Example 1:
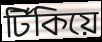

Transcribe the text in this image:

টিঁকিয়ে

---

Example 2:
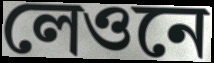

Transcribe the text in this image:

লেওনে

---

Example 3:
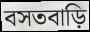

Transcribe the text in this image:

বসতবাড়ি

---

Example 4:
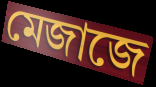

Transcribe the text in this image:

মেজাজে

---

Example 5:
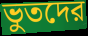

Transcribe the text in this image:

ভুতদের